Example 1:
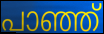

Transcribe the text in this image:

പാഞ്ഞ്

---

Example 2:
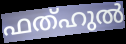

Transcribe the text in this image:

ഫത്ഹുൽ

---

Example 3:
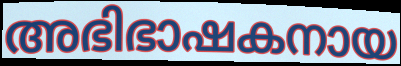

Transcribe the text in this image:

അഭിഭാഷകനായ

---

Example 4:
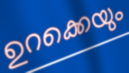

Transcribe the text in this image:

ഉറക്കെയും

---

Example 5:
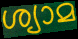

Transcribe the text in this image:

ശ്യാമ